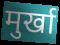
मुर्खा